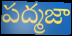
పద్మజా